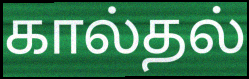
கால்தல்